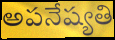
అపనేష్యతి